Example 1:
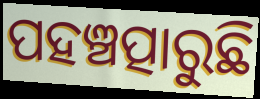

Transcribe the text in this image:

ପହଞ୍ଚତ୍ପାରୁଛି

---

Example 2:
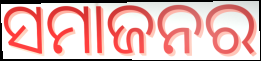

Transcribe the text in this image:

ସମାଜନର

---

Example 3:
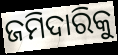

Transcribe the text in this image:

ଜମିଦାରିକୁ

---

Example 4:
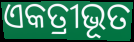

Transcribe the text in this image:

ଏକତ୍ରୀଭୂତ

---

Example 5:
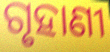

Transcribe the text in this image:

ଗୃହାଣୀ